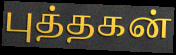
புத்தகன்